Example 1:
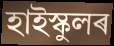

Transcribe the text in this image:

হাইস্কুলৰ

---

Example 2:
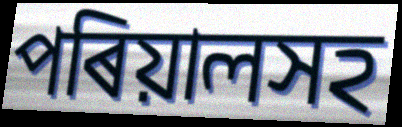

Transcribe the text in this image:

পৰিয়ালসহ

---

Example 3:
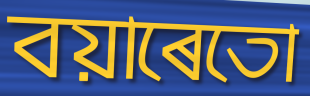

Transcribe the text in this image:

বয়াৰেতো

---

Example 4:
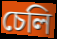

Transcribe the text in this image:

চেলি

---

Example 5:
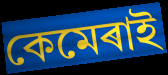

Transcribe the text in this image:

কেমেৰাই